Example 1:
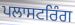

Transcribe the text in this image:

ਪਲਾਸਟਰਿੰਗ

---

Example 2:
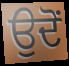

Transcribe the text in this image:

ਉਦੋੰ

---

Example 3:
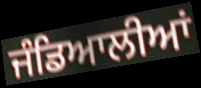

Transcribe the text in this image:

ਜੰਡਿਆਲੀਆਂ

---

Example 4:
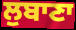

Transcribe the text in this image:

ਲੁਬਾਣਾ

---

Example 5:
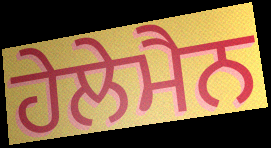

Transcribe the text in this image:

ਹੇਲੇਮੈਨ